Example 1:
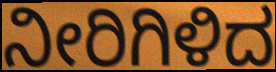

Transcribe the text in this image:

ನೀರಿಗಿಳಿದ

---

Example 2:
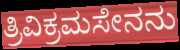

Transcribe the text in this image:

ತ್ರಿವಿಕ್ರಮಸೇನನು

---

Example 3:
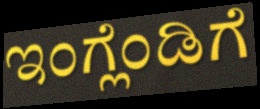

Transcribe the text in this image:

ಇಂಗ್ಲೆಂಡಿಗೆ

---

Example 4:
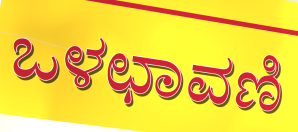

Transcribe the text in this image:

ಒಳಛಾವಣಿ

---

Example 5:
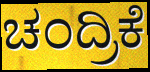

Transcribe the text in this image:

ಚಂದ್ರಿಕೆ